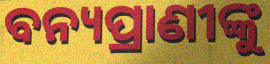
ବନ୍ୟପ୍ରାଣୀଙ୍କୁ